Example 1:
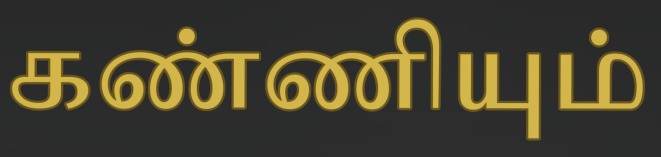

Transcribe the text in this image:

கண்ணியும்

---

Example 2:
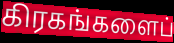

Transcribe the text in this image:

கிரகங்களைப்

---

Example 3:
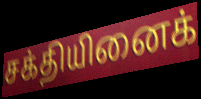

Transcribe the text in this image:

சக்தியினைக்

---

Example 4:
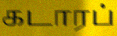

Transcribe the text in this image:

கடாரப்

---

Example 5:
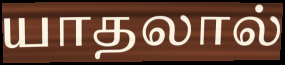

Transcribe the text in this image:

யாதலால்